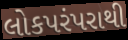
લોકપરંપરાથી